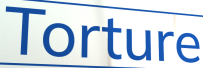
Torture